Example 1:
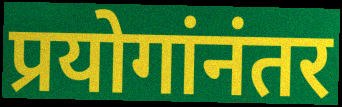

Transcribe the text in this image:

प्रयोगांनंतर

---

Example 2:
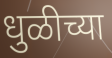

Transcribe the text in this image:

धुळीच्या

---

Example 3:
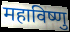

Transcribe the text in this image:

महाविष्णु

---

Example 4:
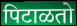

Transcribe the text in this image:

पिटाळतो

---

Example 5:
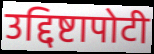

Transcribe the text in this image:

उद्दिष्टापोटी